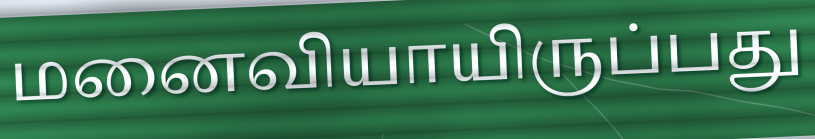
மனைவியாயிருப்பது